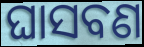
ଘାସବଣ